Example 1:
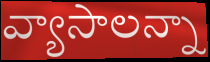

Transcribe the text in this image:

వ్యాసాలన్నా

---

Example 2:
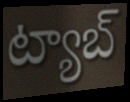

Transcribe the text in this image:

ట్యాబ్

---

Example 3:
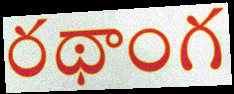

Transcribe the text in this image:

రథాంగ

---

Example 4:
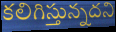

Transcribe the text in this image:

కలిగిస్తున్నదని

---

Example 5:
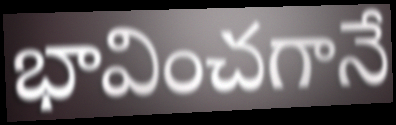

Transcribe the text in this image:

భావించగానే